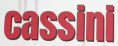
cassini